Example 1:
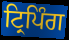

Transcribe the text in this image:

ਟ੍ਰਿਪਿੰਗ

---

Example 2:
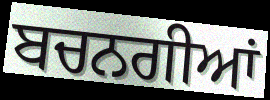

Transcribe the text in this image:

ਬਚਨਗੀਆਂ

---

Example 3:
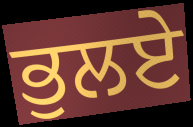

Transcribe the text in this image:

ਭੁਲਏ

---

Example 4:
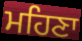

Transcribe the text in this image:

ਮਹਿਣਾ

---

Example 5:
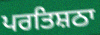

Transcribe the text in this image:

ਪਰਤਿਸ਼ਠਾ